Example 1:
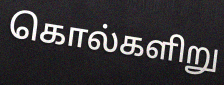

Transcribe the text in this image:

கொல்களிறு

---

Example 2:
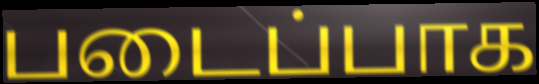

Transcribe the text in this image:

படைப்பாக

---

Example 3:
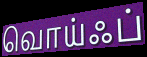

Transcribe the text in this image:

வொய்ஃப்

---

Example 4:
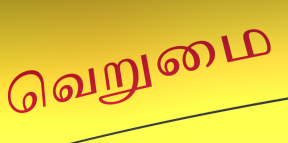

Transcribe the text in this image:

வெறுமை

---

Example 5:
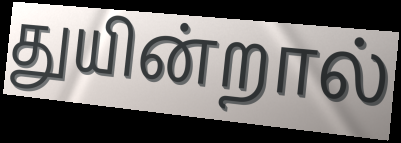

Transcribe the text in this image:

துயின்றால்